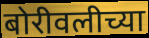
बोरीवलीच्या